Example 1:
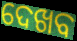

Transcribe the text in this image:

ଦେଖବ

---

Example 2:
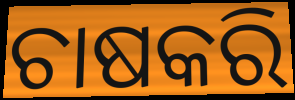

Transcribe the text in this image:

ଚାଷକରି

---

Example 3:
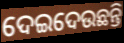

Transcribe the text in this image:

ଦେଇଦେଉଛନ୍ତି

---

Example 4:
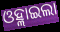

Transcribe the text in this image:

ଓହ୍ଲାଇଲା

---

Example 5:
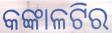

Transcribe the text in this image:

କଙ୍କାଳଟିର